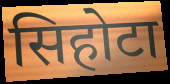
सिहोटा